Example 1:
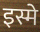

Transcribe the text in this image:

इस्मे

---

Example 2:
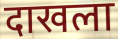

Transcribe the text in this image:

दाखला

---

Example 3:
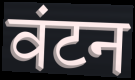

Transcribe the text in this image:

वंटन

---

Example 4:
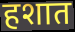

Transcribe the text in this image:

हशात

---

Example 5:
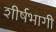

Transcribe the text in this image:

शीर्षभागी